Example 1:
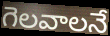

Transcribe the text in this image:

గెలవాలనే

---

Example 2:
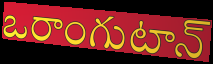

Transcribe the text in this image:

ఒరాంగుటాన్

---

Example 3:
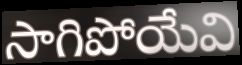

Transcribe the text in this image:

సాగిపోయేవి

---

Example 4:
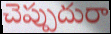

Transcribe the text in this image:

చెప్పుదురా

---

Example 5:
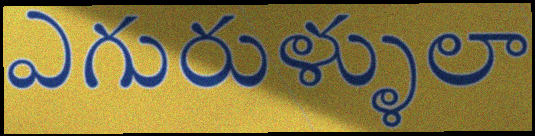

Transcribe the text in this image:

ఎగురుళ్ళులా